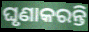
ଘୃଣାକରନ୍ତି